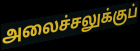
அலைச்சலுக்குப்